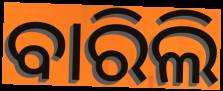
ବାରିଲି